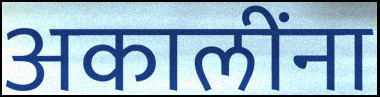
अकालींना